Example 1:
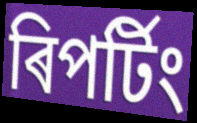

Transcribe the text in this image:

ৰিপৰ্টিং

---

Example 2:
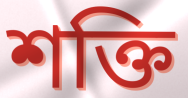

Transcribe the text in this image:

শক্তি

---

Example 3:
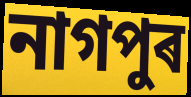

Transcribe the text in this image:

নাগপুৰ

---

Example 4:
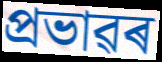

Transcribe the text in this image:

প্ৰভাৱৰ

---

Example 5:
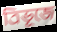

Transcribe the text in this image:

ত্ৰিভূজে